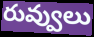
రువ్వులు